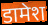
डामेश